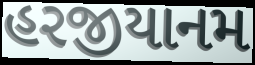
હરજીયાનમ